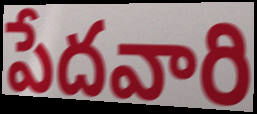
పేదవారి